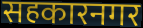
सहकारनगर